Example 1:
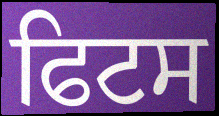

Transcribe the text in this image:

ਫਿਟਸ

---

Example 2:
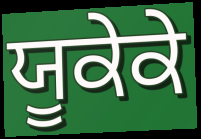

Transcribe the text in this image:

ਯੂਕੇਕੇ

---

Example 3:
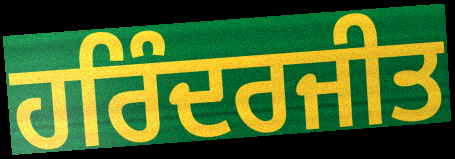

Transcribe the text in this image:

ਹਰਿੰਦਰਜੀਤ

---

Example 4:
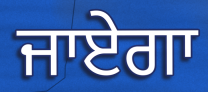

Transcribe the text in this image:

ਜਾਏਗਾ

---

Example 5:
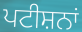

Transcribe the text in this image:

ਪਟੀਸ਼ਨਾਂ